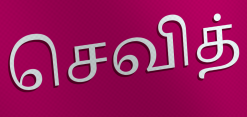
செவித்